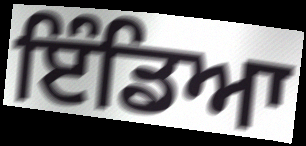
ਇੰਡਿਆ